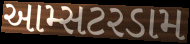
આમ્સટરડામ